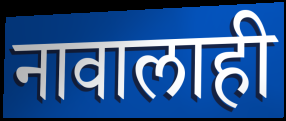
नावालाही